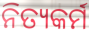
ନିତ୍ଯକର୍ମ